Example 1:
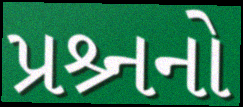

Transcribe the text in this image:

પ્રશ્ર્નનો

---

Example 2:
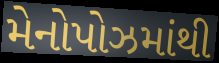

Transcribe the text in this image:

મેનોપોઝમાંથી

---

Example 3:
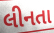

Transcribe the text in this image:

લીનતા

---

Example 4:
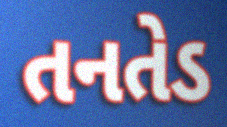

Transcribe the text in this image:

તનતેડ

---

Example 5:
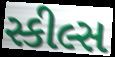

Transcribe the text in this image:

સ્કીલ્સ